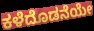
ಕಳೆದೊಡನೆಯೇ